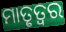
ମାତୃତ୍ୱର